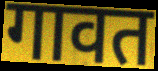
गावत